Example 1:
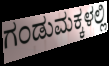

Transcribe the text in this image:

ಗಂಡುಮಕ್ಕಳಲ್ಲಿ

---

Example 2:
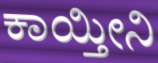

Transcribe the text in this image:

ಕಾಯ್ತೀನಿ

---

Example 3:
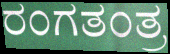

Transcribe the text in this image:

ರಂಗತಂತ್ರ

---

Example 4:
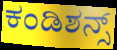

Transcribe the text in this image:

ಕಂಡಿಶನ್ಸ್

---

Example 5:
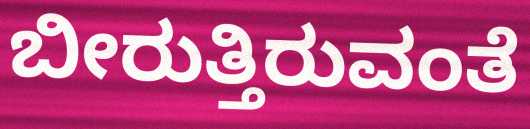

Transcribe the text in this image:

ಬೀರುತ್ತಿರುವಂತೆ